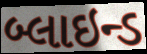
બ્લાઇન્ડ